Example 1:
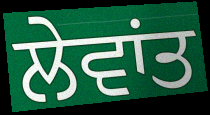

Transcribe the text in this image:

ਲੇਵਾਂਤ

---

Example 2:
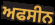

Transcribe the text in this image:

ਅਫਸੀਨ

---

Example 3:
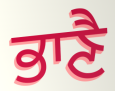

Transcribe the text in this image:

ਭਾਣੈ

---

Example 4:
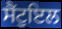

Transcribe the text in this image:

ਸੈਂਟੁਇਲ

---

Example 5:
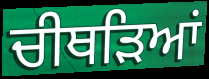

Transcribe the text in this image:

ਚੀਥੜਿਆਂ